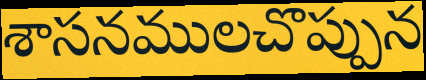
శాసనములచొప్పున